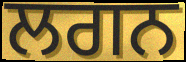
ਲਗਨ